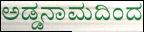
ಅಡ್ಡನಾಮದಿಂದ